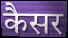
कैसर